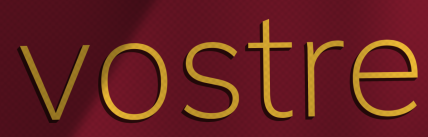
vostre